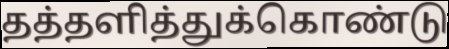
தத்தளித்துக்கொண்டு